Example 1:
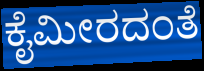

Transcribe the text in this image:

ಕೈಮೀರದಂತೆ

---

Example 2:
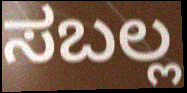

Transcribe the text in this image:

ಸಬಲ್ಲ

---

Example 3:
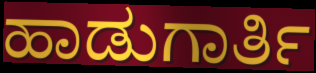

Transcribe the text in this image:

ಹಾಡುಗಾರ್ತಿ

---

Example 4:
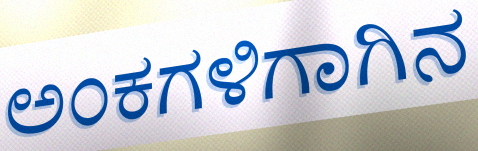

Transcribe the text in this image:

ಅಂಕಗಳಿಗಾಗಿನ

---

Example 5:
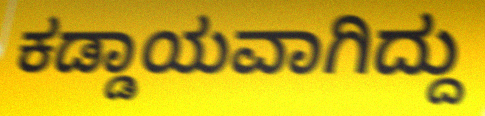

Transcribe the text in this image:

ಕಡ್ಡಾಯವಾಗಿದ್ದು